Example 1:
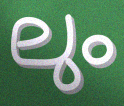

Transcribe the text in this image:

ലും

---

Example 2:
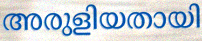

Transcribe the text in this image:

അരുളിയതായി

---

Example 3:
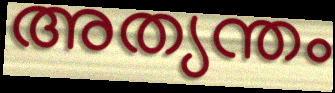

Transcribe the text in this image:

അത്യന്തം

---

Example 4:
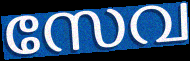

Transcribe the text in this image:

സേവ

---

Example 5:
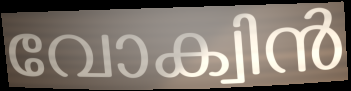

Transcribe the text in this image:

വോക്വിൻ